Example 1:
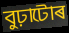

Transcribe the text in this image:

বুঢ়াটোৰ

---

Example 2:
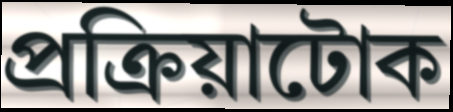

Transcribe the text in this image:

প্ৰক্ৰিয়াটোক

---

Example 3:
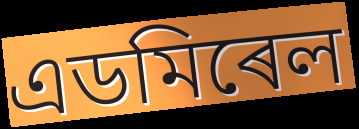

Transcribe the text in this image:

এডমিৰেল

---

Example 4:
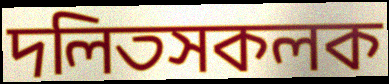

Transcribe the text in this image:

দলিতসকলক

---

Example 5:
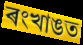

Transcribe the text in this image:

ৰংখাঙত